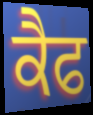
ਕੈਫ